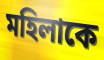
মহিলাকে